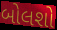
બોલશો